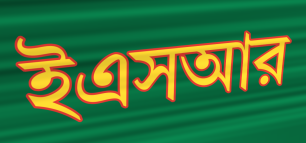
ইএসআর